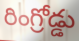
రింగ్రోడ్డు